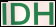
IDH